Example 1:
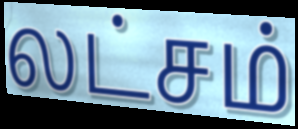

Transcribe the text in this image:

லட்சம்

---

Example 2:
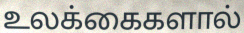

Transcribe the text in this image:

உலக்கைகளால்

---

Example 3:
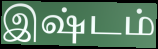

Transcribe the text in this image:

இஷ்டம்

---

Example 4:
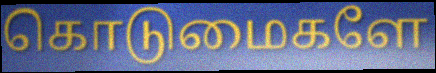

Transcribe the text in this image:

கொடுமைகளே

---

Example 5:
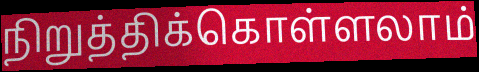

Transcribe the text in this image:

நிறுத்திக்கொள்ளலாம்